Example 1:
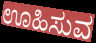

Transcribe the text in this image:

ಊಹಿಸುವ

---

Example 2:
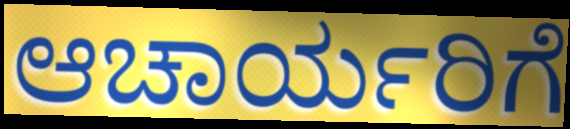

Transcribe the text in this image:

ಆಚಾರ್ಯರಿಗೆ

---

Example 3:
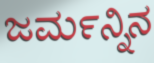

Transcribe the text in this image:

ಜರ್ಮನ್ನಿನ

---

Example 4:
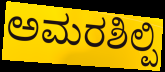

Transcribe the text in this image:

ಅಮರಶಿಲ್ಪಿ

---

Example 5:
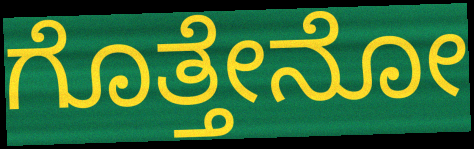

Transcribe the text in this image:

ಗೊತ್ತೇನೋ